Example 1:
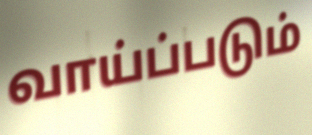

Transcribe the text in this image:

வாய்ப்படும்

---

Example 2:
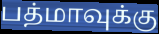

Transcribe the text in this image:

பத்மாவுக்கு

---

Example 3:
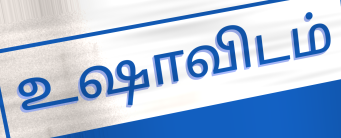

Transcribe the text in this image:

உஷாவிடம்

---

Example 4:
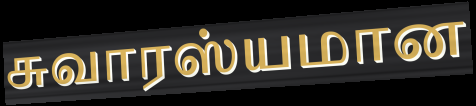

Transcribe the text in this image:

சுவாரஸ்யமான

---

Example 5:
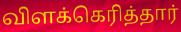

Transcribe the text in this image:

விளக்கெரித்தார்